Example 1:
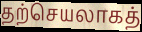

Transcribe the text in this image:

தற்செயலாகத்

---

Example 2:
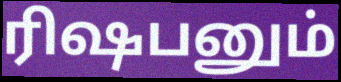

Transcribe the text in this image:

ரிஷபனும்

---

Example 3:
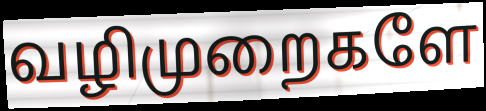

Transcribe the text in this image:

வழிமுறைகளே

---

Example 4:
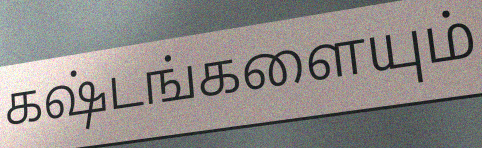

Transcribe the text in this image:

கஷ்டங்களையும்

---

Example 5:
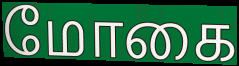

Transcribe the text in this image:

மோகை